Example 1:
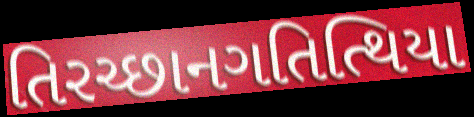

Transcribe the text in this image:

તિરચ્છાનગતિત્થિયા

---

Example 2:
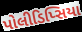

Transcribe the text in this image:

પોલીડિપ્સિયા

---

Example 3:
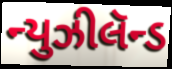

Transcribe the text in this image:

ન્યુઝીલૅન્ડ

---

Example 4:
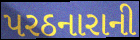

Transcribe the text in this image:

પરઠનારાની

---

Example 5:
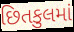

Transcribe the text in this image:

છિતકુલમાં